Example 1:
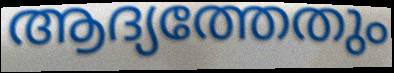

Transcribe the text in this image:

ആദ്യത്തേതും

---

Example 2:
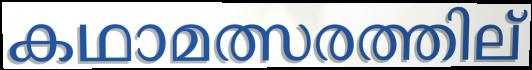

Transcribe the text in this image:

കഥാമത്സരത്തില്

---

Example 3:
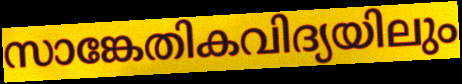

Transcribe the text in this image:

സാങ്കേതികവിദ്യയിലും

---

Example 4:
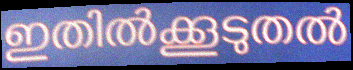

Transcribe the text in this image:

ഇതിൽക്കൂടുതൽ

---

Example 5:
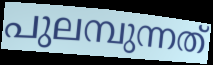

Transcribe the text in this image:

പുലമ്പുന്നത്